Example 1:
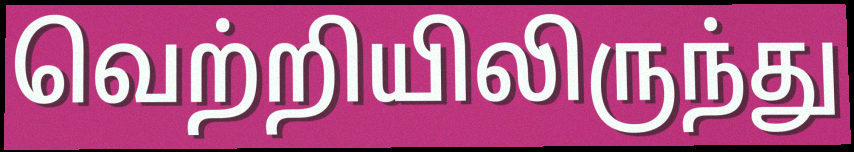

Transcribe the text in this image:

வெற்றியிலிருந்து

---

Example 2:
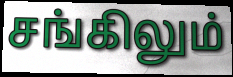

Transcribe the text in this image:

சங்கிலும்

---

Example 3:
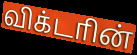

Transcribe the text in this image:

விக்டரின்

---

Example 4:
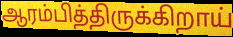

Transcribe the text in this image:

ஆரம்பித்திருக்கிறாய்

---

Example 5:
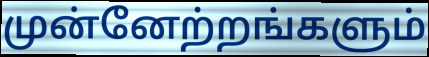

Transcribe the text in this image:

முன்னேற்றங்களும்